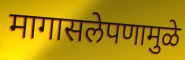
मागासलेपणामुळे